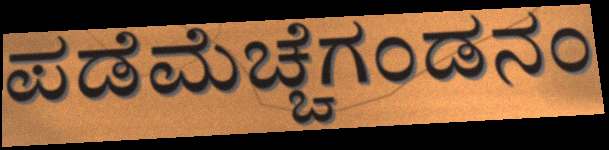
ಪಡೆಮೆಚ್ಚೆಗಂಡನಂ